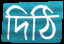
দিঠি